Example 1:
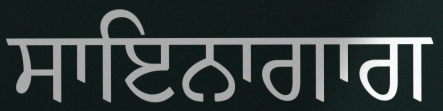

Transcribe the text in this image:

ਸਾਇਨਾਗਾਗ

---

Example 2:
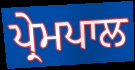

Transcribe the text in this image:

ਪ੍ਰੇਮਪਾਲ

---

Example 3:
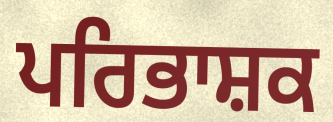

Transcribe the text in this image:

ਪਰਿਭਾਸ਼ਕ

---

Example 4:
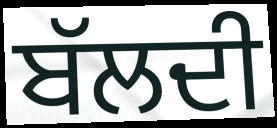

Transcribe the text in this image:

ਬੱਲਦੀ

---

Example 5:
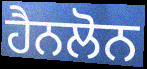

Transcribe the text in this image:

ਹੈਨਲੋਨ